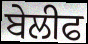
ਬੇਲੀਫ